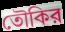
তৌকির